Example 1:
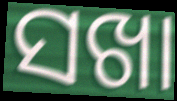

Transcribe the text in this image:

ସଖା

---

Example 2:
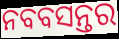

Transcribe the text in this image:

ନବବସନ୍ତର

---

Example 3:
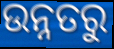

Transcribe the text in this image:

ଉନ୍ନତରୁ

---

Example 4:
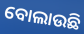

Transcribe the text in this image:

ବୋଲାଉଛି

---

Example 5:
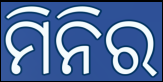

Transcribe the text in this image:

ମିନିର